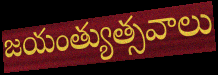
జయంత్యుత్సవాలు